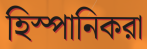
হিস্পানিকরা